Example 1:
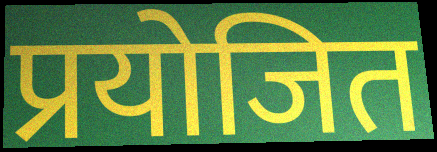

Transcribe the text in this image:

प्रयोजित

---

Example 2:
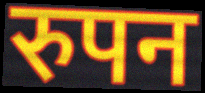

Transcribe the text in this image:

रुपन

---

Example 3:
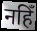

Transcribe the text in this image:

नहिँ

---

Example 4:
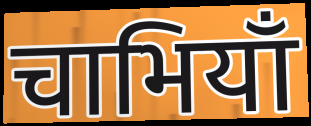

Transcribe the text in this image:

चाभियाँ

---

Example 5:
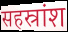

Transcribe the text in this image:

सहस्रांश